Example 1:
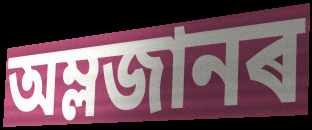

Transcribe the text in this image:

অম্লজানৰ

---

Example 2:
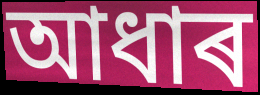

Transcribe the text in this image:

আধাৰ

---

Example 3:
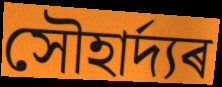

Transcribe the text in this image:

সৌহাৰ্দ্যৰ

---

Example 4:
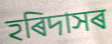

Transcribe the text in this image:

হৰিদাসৰ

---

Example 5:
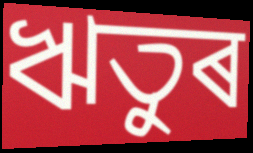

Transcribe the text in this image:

ঋতুৰ